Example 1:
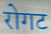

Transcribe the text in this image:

रोगट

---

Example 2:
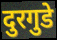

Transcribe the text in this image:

दुरगुडे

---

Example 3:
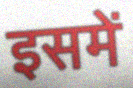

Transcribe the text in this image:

इसमें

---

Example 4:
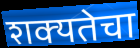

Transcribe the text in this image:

शक्‍यतेचा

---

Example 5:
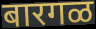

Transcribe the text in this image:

बारगळ